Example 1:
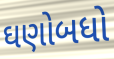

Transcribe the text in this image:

ઘણોબધો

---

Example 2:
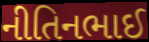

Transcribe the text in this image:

નીતિનભાઈ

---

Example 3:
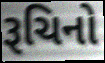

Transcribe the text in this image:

રૂચિનો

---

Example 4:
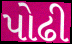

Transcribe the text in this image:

પોઢી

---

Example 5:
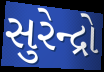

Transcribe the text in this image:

સુરેન્દ્રો